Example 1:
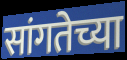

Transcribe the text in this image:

सांगतेच्या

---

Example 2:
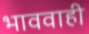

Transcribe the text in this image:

भाववाही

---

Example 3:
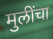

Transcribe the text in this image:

मुलींचा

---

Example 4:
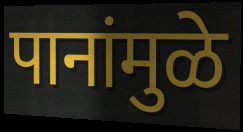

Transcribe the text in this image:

पानांमुळे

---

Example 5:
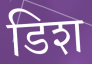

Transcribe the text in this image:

डिश